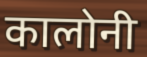
कालोनी